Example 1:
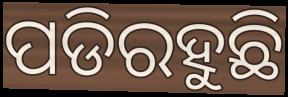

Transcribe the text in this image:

ପଡିରହୁଛି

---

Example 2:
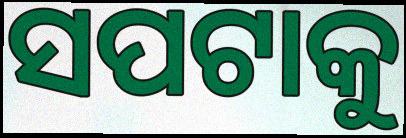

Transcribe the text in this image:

ସପଟାକୁ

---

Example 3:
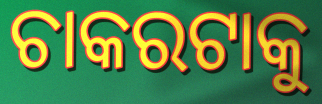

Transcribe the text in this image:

ଚାକରଟାକୁ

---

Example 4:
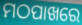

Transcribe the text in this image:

ମଠପାଖରେ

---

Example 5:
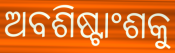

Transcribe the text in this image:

ଅବଶିଷ୍ଟାଂଶକୁ